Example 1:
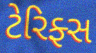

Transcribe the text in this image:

ટેરિફ્સ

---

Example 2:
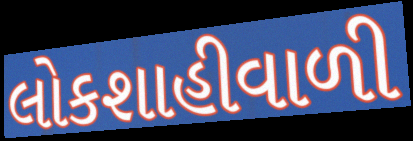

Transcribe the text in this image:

લોકશાહીવાળી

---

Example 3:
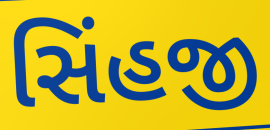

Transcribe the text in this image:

સિંહજી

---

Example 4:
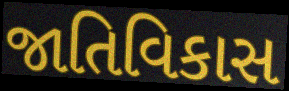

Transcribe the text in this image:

જાતિવિકાસ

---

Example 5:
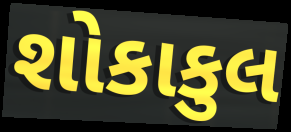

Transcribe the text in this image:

શોકાકુલ